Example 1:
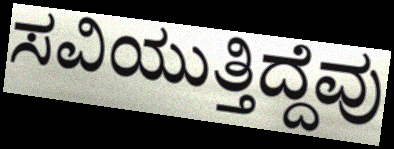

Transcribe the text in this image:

ಸವಿಯುತ್ತಿದ್ದೆವು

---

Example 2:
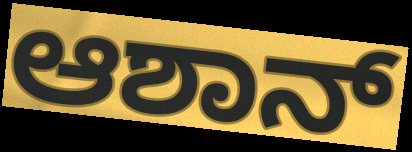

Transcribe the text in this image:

ಆಶಾನ್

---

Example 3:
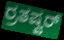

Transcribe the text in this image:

ರ್ರತಷ್ವರ್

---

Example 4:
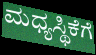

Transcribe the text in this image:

ಮಧ್ಯಸ್ಥಿಕೆಗೆ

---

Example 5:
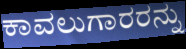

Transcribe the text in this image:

ಕಾವಲುಗಾರರನ್ನು